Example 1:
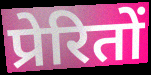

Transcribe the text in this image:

प्रेरितों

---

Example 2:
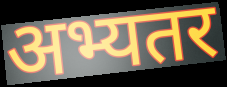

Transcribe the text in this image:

अभ्यतर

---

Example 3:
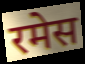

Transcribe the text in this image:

रमेस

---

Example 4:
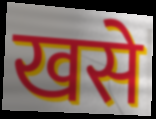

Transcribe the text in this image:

खसे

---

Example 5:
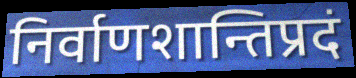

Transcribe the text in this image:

निर्वाणशान्तिप्रदं